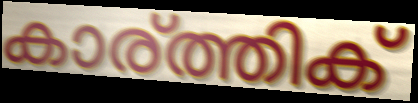
കാര്ത്തിക്